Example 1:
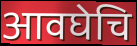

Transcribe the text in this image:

आवघेचि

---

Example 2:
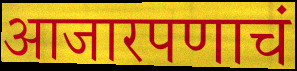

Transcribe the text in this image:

आजारपणाचं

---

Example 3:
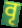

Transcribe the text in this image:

वृ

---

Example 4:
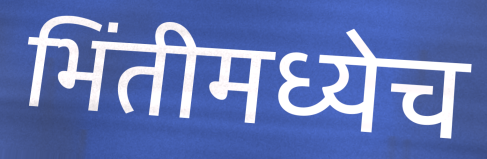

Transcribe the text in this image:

भिंतीमध्येच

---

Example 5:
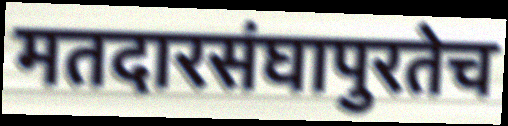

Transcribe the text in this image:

मतदारसंघापुरतेच